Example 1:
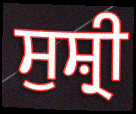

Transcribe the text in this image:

ਸੁਸ਼੍ਰੀ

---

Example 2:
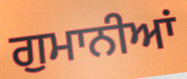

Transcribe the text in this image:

ਗੁਮਾਨੀਆਂ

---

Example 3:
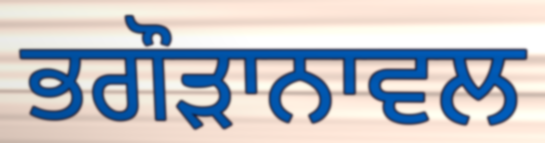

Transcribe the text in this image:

ਭਗੌੜਾਨਾਵਲ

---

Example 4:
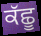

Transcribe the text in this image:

ਕੱਛੂ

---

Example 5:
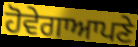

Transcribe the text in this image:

ਹੋਵੇਗਾਆਪਣੇ